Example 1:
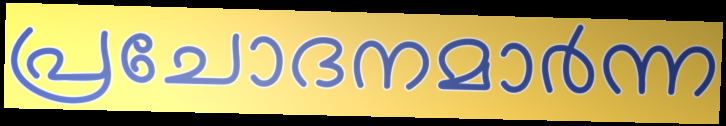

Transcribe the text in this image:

പ്രചോദനമാർന്ന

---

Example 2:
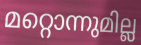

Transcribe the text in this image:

മറ്റൊന്നുമില്ല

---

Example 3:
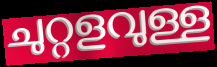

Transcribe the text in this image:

ചുറ്റളവുള്ള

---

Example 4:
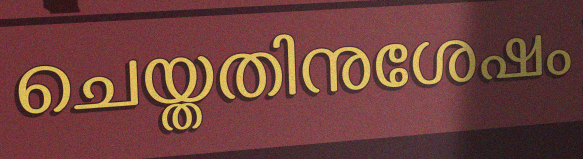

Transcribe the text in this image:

ചെയ്തതിനുശേഷം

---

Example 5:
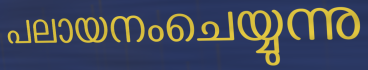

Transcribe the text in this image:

പലായനംചെയ്യുന്നു